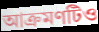
আক্রমণটিও